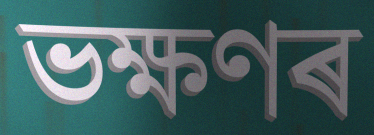
ভক্ষণৰ